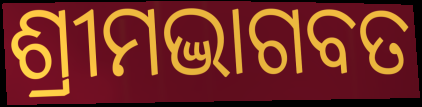
ଶ୍ରୀମଦ୍ଭାଗବତ